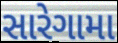
સારેગામા